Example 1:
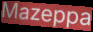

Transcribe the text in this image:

Mazeppa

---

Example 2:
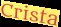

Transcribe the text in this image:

Crista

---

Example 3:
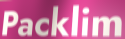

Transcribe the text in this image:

Packlim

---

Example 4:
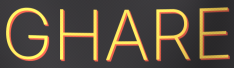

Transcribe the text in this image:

GHARE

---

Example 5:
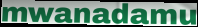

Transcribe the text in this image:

mwanadamu